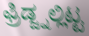
ಫ್ರಿಡ್ಜ್ನಲ್ಲಿಟ್ಟ